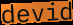
devid